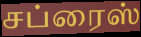
சப்ரைஸ்